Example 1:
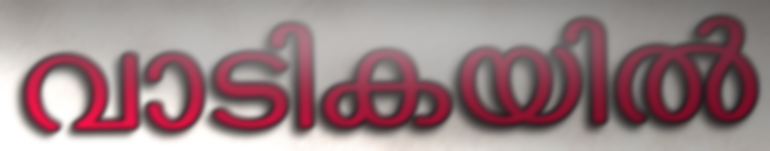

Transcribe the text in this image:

വാടികയിൽ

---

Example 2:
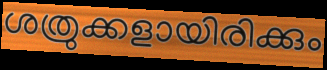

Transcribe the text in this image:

ശത്രുക്കളായിരിക്കും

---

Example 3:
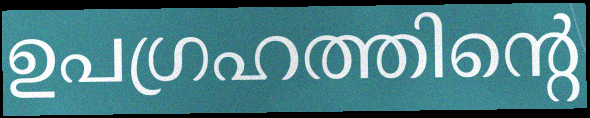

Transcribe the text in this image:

ഉപഗ്രഹത്തിന്റെ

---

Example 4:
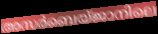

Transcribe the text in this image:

അസർബെയ്ജാനിലെ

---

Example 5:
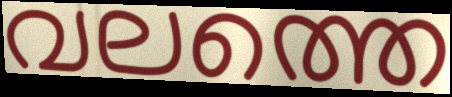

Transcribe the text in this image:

വലത്തെ